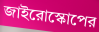
জাইরোস্কোপের